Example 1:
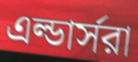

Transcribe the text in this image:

এল্ডার্সরা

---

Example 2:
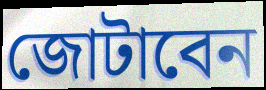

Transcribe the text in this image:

জোটাবেন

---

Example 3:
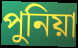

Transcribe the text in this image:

পুনিয়া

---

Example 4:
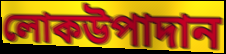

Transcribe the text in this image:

লোকউপাদান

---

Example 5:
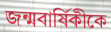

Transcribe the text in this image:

জন্মবার্ষিকীকে